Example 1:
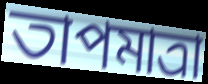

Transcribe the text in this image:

তাপমাত্ৰা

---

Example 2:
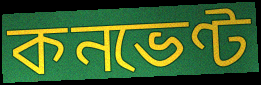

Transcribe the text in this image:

কনভেণ্ট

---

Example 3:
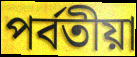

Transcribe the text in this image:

পৰ্বতীয়া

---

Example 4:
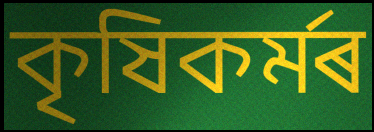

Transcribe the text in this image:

কৃষিকৰ্মৰ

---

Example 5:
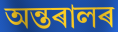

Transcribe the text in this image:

অন্তৰালৰ